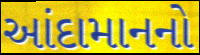
આંદામાનનો